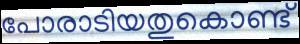
പോരാടിയതുകൊണ്ട്